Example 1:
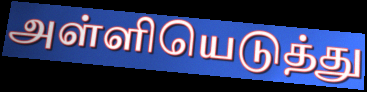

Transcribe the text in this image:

அள்ளியெடுத்து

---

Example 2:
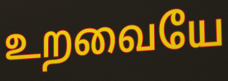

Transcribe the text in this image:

உறவையே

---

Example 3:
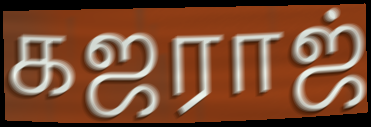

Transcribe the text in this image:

கஜராஜ்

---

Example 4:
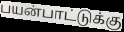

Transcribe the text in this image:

பயன்பாட்டுக்கு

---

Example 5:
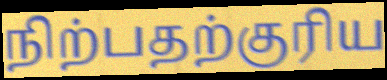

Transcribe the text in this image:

நிற்பதற்குரிய